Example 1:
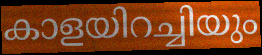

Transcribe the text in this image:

കാളയിറച്ചിയും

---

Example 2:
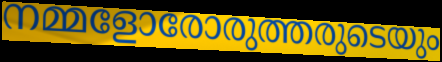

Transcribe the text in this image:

നമ്മളോരോരുത്തരുടെയും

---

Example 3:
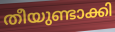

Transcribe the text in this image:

തീയുണ്ടാക്കി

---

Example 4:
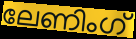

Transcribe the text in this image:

ലേണിംഗ്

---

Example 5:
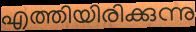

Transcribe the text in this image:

എത്തിയിരിക്കുന്നു